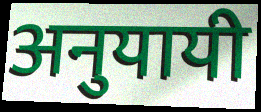
अनुयायी